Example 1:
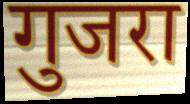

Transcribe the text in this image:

गुजरा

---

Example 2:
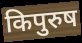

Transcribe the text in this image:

किपुरुष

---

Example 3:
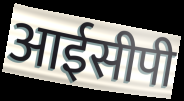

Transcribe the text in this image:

आईसीपी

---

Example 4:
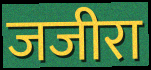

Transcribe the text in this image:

जजीरा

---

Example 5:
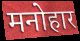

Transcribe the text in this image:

मनोहार